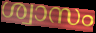
ശ്വാസം